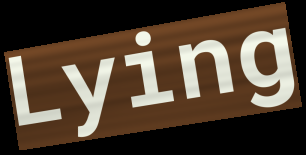
Lying